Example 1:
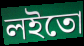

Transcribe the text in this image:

লইতো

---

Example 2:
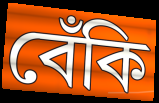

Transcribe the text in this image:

বেঁকি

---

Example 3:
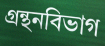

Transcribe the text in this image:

গ্রন্থনবিভাগ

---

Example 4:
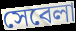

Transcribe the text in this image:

সেবেলা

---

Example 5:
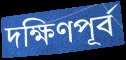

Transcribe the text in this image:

দক্ষিণপূর্ব